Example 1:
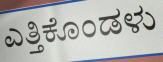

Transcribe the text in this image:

ಎತ್ತಿಕೊಂಡಳು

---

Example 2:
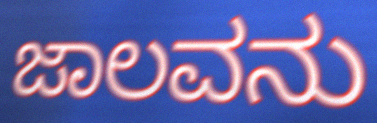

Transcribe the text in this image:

ಜಾಲವನು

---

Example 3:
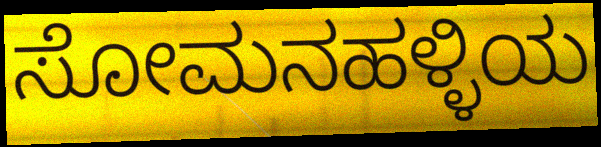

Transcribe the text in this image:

ಸೋಮನಹಳ್ಳಿಯ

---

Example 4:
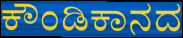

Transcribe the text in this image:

ಕೌಂಡಿಕಾನದ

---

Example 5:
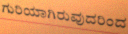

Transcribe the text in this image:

ಗುರಿಯಾಗಿರುವುದರಿಂದ